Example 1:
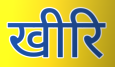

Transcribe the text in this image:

खीरि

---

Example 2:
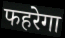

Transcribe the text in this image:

फहरेगा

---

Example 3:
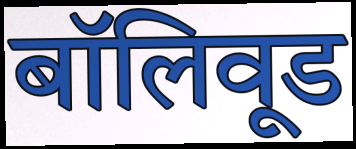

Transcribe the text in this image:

बॉलिवूड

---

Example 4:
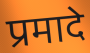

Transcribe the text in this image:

प्रमादे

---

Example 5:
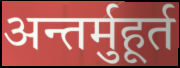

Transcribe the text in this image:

अन्तर्मुहूर्त